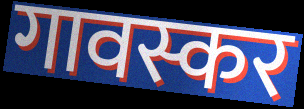
गावस्‍कर